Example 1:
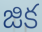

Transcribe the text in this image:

జిక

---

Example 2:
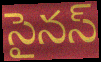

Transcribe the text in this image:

సైనస్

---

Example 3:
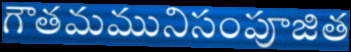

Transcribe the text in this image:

గౌతమమునిసంపూజిత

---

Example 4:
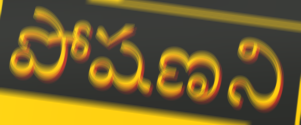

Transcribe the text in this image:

పోషణని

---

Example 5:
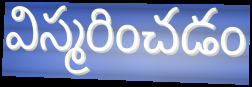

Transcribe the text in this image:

విస్మరించడం